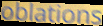
oblations